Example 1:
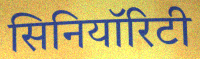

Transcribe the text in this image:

सिनियॉरिटी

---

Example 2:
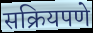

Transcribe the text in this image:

सक्रियपणे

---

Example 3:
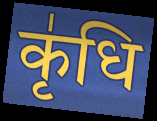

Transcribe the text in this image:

कृ॑धि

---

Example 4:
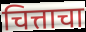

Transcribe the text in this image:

चित्ताचा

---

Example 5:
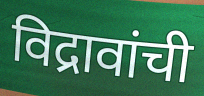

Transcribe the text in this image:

विद्रावांची